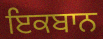
ਇਕਬਾਨ